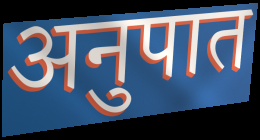
अनुपात